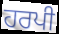
ਹਰਪੀ